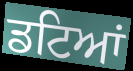
ਡਟਿਆਂ